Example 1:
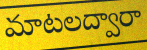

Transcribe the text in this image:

మాటలద్వారా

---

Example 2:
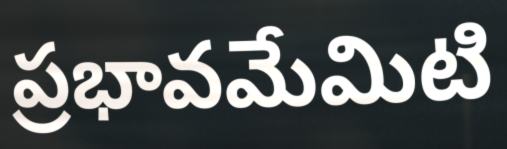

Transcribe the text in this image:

ప్రభావమేమిటి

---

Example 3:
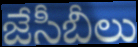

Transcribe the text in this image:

జేసీబీలు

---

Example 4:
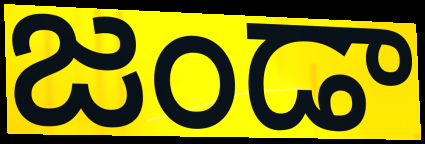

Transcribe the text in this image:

జండా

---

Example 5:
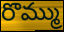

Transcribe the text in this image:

రొమ్ము